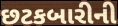
છટકબારીની